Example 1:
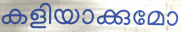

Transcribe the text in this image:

കളിയാക്കുമോ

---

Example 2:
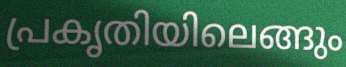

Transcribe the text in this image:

പ്രകൃതിയിലെങ്ങും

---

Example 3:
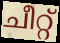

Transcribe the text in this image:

ചീറ്റ്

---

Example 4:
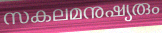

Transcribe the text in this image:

സകലമനുഷ്യരും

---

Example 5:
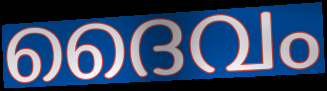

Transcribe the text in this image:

ദൈവം